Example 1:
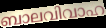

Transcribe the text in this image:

ബാലവിവാഹ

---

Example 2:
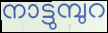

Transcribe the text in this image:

നാട്ടുമ്പുറ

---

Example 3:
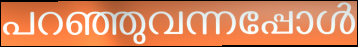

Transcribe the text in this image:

പറഞ്ഞുവന്നപ്പോൾ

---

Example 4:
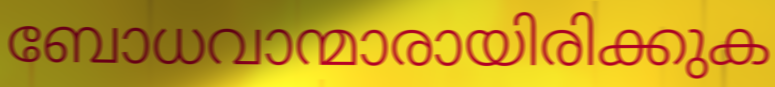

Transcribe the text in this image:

ബോധവാന്മാരായിരിക്കുക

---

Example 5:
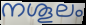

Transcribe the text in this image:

നശൂലം